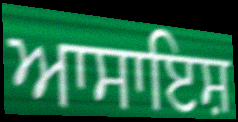
ਆਸਾਇਸ਼